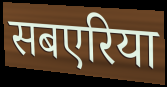
सबएरिया